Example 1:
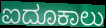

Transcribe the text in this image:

ಐದೂಕಾಲು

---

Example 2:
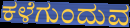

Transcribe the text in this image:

ಕಳೆಗುಂದುವ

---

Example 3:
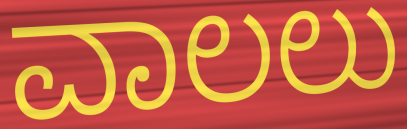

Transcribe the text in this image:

ವಾಲಲು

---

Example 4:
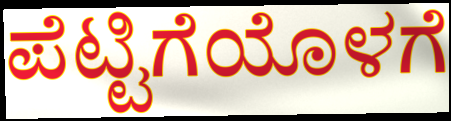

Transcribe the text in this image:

ಪೆಟ್ಟಿಗೆಯೊಳಗೆ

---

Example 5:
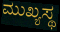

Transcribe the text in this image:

ಮುಖ್ಯಸ್ಥ